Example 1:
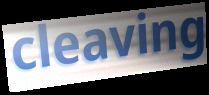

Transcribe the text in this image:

cleaving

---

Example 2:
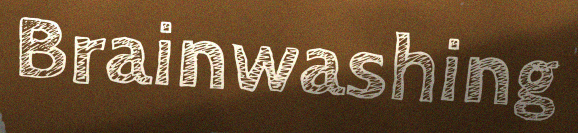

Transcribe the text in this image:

Brainwashing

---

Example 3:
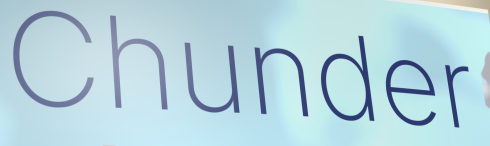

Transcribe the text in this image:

Chunder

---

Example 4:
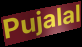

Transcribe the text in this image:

Pujalal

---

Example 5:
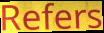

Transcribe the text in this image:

Refers